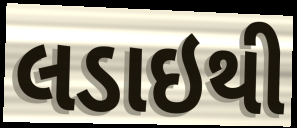
લડાઇથી